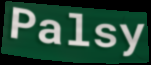
Palsy